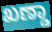
ಖಣ್ಡಾ